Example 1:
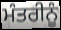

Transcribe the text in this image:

ਮੰਤਰੀਨੂੰ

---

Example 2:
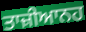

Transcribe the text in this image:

ਤਾਜ਼ੀਆਨਹ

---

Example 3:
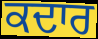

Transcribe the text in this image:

ਕਦਾਰ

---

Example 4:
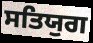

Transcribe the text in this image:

ਸਤਿਯੁਗ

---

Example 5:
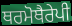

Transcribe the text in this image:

ਥਰਮੋਥੈਰੇਪੀ